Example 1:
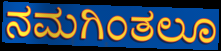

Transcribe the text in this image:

ನಮಗಿಂತಲೂ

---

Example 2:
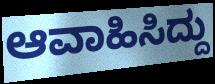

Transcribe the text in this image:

ಆವಾಹಿಸಿದ್ದು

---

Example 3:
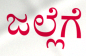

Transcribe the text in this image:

ಜಲ್ಲೆಗೆ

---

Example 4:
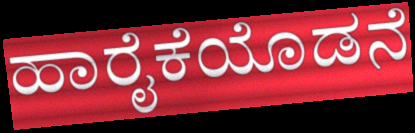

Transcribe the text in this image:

ಹಾರೈಕೆಯೊಡನೆ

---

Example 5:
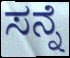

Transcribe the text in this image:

ಸನ್ನೆ